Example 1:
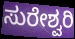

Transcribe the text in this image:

ಸುರೇಶ್ವರಿ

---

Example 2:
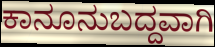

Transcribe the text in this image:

ಕಾನೂನುಬದ್ದವಾಗಿ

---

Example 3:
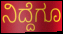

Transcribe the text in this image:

ನಿದ್ದೆಗೂ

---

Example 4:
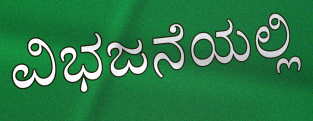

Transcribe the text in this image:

ವಿಭಜನೆಯಲ್ಲಿ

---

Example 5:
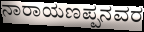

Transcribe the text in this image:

ನಾರಾಯಣಪ್ಪನವರ